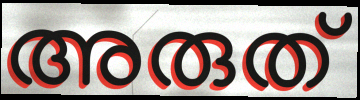
അരുത്